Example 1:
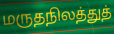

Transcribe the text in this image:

மருதநிலத்துத்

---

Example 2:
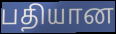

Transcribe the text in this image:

பதியான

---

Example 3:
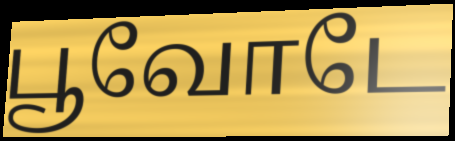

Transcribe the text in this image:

பூவோடே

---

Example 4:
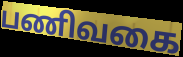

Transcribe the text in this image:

பணிவகை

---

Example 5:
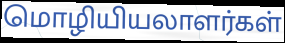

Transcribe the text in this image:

மொழியியலாளர்கள்